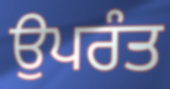
ਉਪਰੰਤ